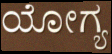
ಯೋಗ್ಯ